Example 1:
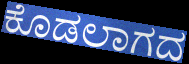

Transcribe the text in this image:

ಕೊಡಲಾಗದ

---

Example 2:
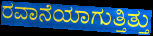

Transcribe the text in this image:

ರವಾನೆಯಾಗುತ್ತಿತ್ತು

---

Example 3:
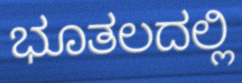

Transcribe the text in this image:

ಭೂತಲದಲ್ಲಿ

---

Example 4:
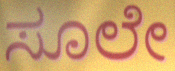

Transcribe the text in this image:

ಸೂಲೇ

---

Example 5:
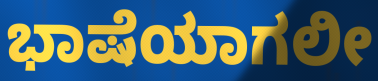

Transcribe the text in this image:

ಭಾಷೆಯಾಗಲೀ